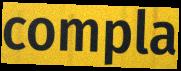
compla